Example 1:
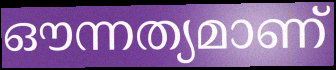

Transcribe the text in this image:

ഔന്നത്യമാണ്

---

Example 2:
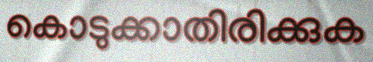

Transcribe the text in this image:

കൊടുക്കാതിരിക്കുക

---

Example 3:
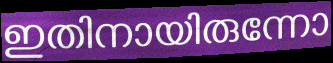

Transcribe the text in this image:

ഇതിനായിരുന്നോ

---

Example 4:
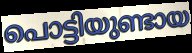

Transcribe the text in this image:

പൊട്ടിയുണ്ടായ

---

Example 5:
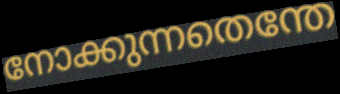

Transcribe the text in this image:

നോക്കുന്നതെന്തേ